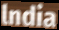
lndia